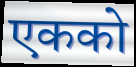
एकको